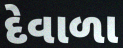
દેવાળા